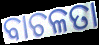
ବାଚଳତା